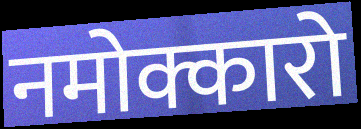
नमोक्कारो